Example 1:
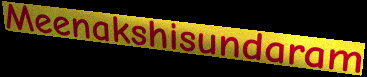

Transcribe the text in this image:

Meenakshisundaram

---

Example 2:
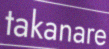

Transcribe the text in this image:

takanare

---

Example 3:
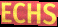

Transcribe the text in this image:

ECHS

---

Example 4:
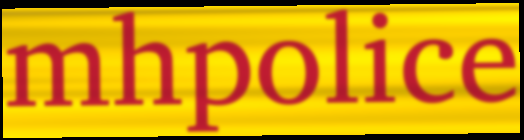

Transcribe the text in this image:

mhpolice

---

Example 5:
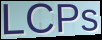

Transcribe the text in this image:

LCPs